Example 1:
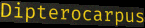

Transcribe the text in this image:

Dipterocarpus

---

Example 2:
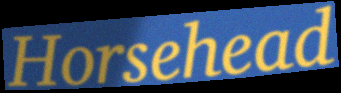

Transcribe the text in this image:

Horsehead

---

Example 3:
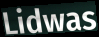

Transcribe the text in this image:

Lidwas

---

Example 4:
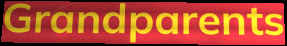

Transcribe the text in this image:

Grandparents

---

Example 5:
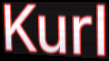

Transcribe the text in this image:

Kurl